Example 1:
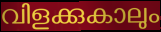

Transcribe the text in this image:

വിളക്കുകാലും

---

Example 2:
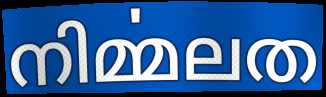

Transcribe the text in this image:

നിൎമ്മലത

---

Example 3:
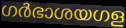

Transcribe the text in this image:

ഗർഭാശയഗള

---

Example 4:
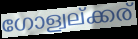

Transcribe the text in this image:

ഗോള്വല്ക്കര്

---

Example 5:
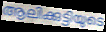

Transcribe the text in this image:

ആലിക്കുട്ടിയുടെ